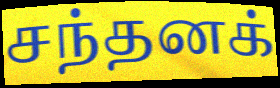
சந்தனக்